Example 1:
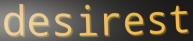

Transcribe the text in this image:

desirest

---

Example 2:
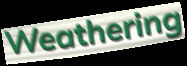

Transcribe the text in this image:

Weathering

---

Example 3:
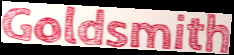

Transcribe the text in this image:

Goldsmith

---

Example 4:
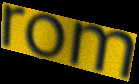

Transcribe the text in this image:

rom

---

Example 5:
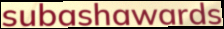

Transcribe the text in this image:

subashawards